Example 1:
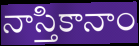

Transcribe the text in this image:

నాస్తికానాం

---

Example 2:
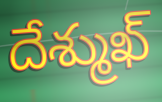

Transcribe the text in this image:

దేశ్ముఖ్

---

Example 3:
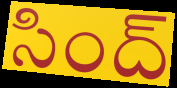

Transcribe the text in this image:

సింద్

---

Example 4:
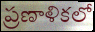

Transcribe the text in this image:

ప్రణాళికలో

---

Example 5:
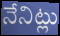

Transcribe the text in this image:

నేనిట్లు